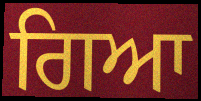
ਗਿਆ